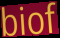
biof